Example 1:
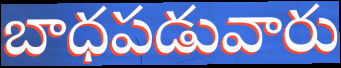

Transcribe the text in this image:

బాధపడువారు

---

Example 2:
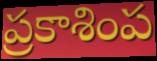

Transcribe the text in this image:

ప్రకాశింప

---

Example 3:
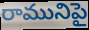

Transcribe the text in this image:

రామునిపై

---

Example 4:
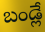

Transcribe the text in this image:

బండ్లే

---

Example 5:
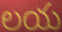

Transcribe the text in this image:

లయ